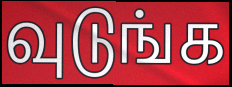
வுடுங்க